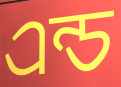
এন্ড